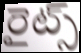
రైట్స్